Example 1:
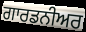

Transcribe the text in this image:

ਗਾਰਡਨੀਅਰ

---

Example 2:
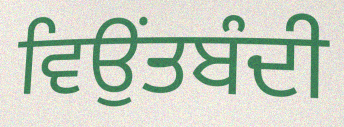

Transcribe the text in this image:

ਵਿਉਂਤਬੰਦੀ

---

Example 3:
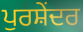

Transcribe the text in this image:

ਪੁਰਸ਼ੇਂਦਰ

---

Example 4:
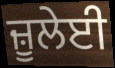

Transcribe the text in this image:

ਜ਼ੂਲੇਈ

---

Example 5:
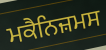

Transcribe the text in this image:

ਮਕੈਨਿਜ਼ਮਸ